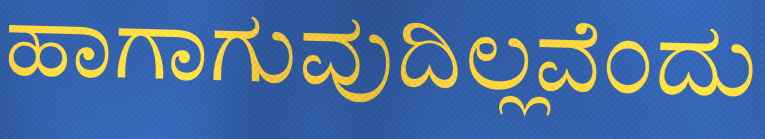
ಹಾಗಾಗುವುದಿಲ್ಲವೆಂದು